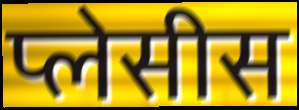
प्लेसीस